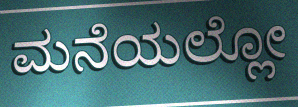
ಮನೆಯಲ್ಲೋ